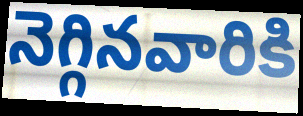
నెగ్గినవారికి